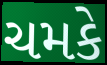
ચમકે